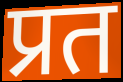
प्रत